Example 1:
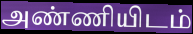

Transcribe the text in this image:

அண்ணியிடம்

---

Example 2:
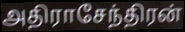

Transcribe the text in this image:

அதிராசேந்திரன்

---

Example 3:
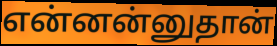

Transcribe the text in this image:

என்னன்னுதான்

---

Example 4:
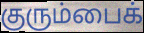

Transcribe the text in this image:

குரும்பைக்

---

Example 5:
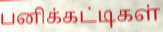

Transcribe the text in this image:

பனிக்கட்டிகள்